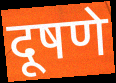
दूषणे